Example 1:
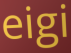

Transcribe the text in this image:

eigi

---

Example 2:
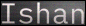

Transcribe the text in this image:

Ishan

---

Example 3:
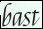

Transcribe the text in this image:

bast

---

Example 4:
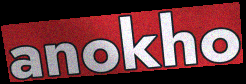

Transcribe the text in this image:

anokho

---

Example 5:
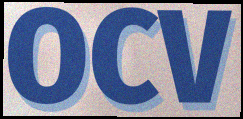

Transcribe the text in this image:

OCV